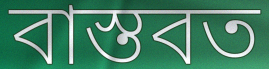
বাস্তবত